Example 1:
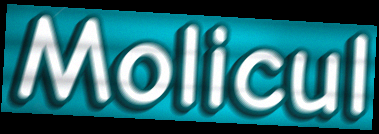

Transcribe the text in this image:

Molicul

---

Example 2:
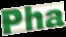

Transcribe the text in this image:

Pha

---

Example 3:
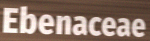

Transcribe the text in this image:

Ebenaceae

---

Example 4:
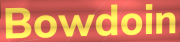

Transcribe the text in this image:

Bowdoin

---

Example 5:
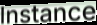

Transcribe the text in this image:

Instance